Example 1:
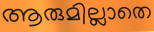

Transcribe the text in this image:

ആരുമില്ലാതെ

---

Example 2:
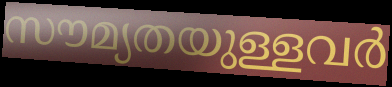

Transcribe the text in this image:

സൗമ്യതയുള്ളവർ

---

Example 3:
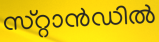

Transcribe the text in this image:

സ്‌റ്റാൻഡിൽ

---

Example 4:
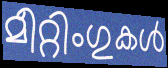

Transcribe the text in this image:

മീറ്റിംഗുകൾ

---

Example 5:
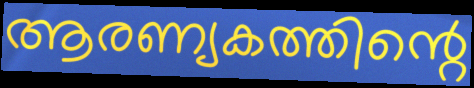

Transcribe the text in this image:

ആരണ്യകത്തിന്റെ